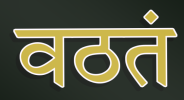
वठतं